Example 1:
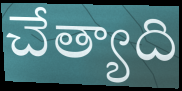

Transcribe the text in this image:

చేత్యాది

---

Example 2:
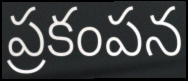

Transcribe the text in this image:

ప్రకంపన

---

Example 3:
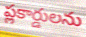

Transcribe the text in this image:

ప్లకార్డులను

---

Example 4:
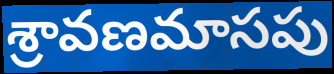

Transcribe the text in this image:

శ్రావణమాసపు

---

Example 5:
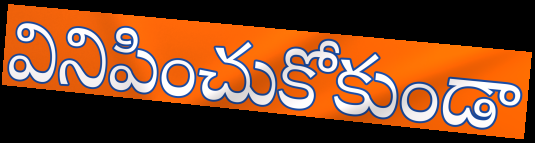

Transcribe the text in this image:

వినిపించుకోకుండా